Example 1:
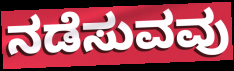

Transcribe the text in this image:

ನಡೆಸುವವು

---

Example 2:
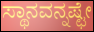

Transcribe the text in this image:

ಸ್ಥಾನವನ್ನಷ್ಟೇ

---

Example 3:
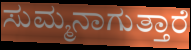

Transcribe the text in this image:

ಸುಮ್ಮನಾಗುತ್ತಾರೆ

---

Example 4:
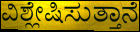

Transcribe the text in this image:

ವಿಶ್ಲೇಷಿಸುತ್ತಾನೆ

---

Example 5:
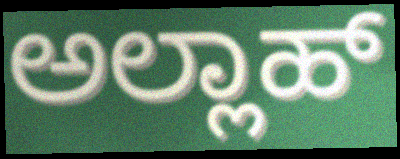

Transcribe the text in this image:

ಅಲ್ಲಾಹ್